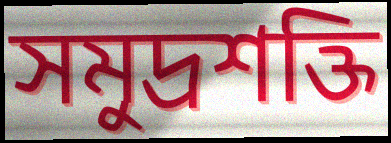
সমুদ্রশক্তি